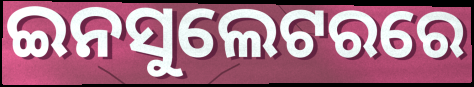
ଇନସୁଲେଟରରେ